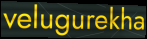
velugurekha